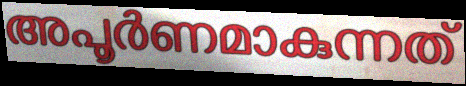
അപൂർണമാകുന്നത്